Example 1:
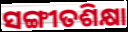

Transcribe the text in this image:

ସଙ୍ଗୀତଶିକ୍ଷା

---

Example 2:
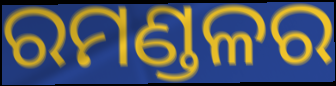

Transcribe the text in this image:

ରମଣ୍ଡଳର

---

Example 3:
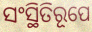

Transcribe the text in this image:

ସଂସ୍ଥିତିରୂପେ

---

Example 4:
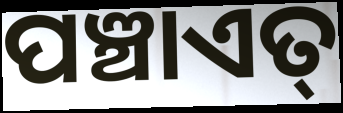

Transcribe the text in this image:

ପଞ୍ଚାଏତ୍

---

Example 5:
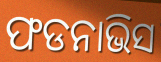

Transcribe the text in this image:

ଫଡନାଭିସ